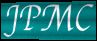
JPMC